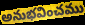
అనుభవించము